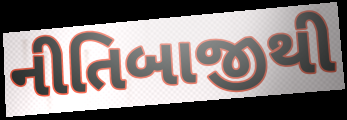
નીતિબાજીથી